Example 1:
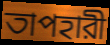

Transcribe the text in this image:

তাপহারী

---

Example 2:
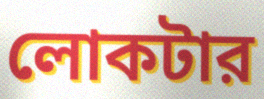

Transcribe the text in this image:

লোকটার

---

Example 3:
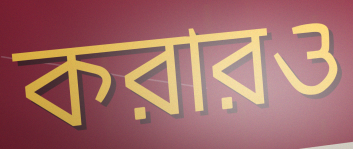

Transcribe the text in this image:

করারও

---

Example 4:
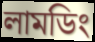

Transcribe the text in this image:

লামডিং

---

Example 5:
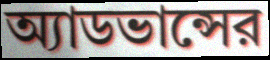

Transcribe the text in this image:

অ্যাডভান্সের